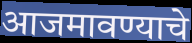
आजमावण्याचे